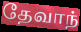
தேவாந்